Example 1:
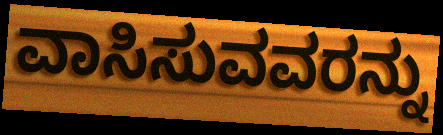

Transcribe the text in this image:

ವಾಸಿಸುವವರನ್ನು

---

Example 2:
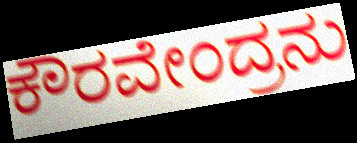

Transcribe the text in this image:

ಕೌರವೇಂದ್ರನು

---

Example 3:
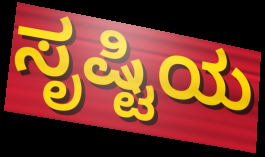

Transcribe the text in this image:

ಸೃಷ್ಟಿಯ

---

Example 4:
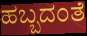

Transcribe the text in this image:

ಹಬ್ಬದಂತೆ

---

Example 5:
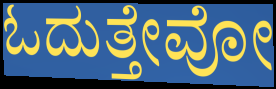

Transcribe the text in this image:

ಓದುತ್ತೇವೋ